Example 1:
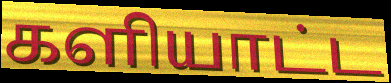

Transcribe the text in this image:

களியாட்ட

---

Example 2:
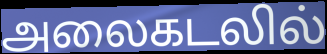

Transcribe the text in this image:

அலைகடலில்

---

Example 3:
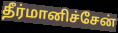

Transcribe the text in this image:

தீர்மானிச்சேன்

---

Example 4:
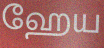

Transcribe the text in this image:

ஹேய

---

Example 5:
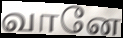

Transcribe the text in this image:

வானே